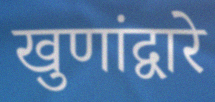
खुणांद्वारे